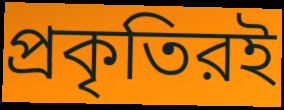
প্রকৃতিরই